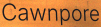
Cawnpore